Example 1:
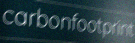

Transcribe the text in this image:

carbonfootprint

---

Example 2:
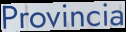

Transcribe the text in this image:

Provincia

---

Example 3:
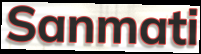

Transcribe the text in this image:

Sanmati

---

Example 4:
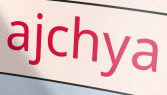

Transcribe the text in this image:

ajchya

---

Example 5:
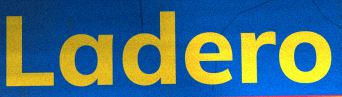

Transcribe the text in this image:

Ladero